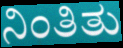
ನಿಂತಿತು